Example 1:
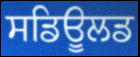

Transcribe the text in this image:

ਸਡਿਊਲਡ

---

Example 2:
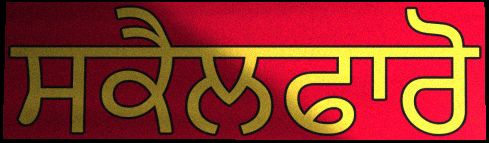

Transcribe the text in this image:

ਸਕੈਲਫਾਰੋ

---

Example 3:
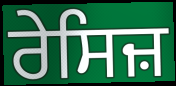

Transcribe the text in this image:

ਰੇਸਿਜ਼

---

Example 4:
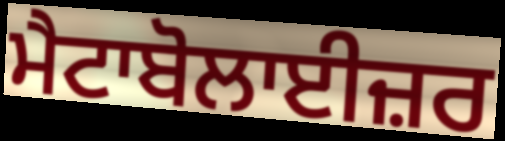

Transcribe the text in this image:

ਮੈਟਾਬੋਲਾਈਜ਼ਰ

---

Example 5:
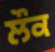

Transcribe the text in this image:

ਲੌਕ